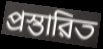
প্ৰস্তাৱিত